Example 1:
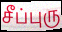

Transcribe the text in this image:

சீப்புரு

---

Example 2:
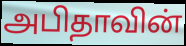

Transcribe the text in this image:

அபிதாவின்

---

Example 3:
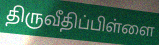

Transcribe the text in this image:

திருவீதிப்பிள்ளை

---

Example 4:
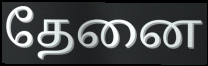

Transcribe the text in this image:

தேனை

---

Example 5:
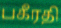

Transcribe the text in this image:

பகீரதி